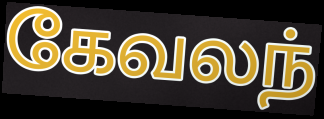
கேவலந்